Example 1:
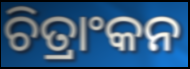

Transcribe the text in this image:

ଚିତ୍ରାଂକନ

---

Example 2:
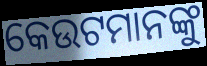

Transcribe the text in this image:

କେଉଟମାନଙ୍କୁ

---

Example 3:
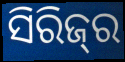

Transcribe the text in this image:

ସିରିଜ୍‌ର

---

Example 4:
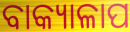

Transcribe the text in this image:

ବାକ୍ୟାଳାପ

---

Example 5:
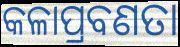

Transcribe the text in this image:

କଳାପ୍ରବଣତା